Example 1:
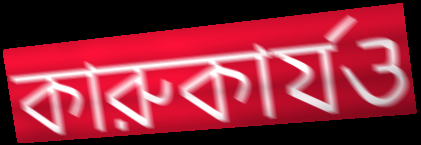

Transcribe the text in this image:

কারুকার্যও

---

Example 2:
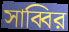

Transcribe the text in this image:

সাব্বির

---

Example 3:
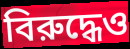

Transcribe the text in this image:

বিরুদ্ধেও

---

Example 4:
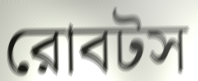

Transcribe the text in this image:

রোবটস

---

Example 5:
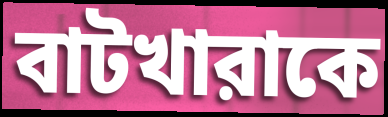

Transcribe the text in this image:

বাটখারাকে